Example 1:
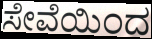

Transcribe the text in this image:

ಸೇವೆಯಿಂದ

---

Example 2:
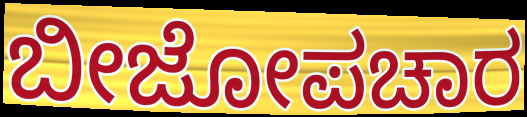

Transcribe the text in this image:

ಬೀಜೋಪಚಾರ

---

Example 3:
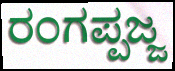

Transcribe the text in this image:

ರಂಗಪ್ಪಜ್ಜ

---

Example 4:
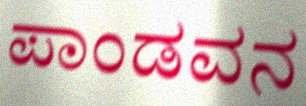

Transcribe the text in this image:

ಪಾಂಡವನ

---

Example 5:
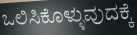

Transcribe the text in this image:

ಒಲಿಸಿಕೊಳ್ಳುವುದಕ್ಕೆ